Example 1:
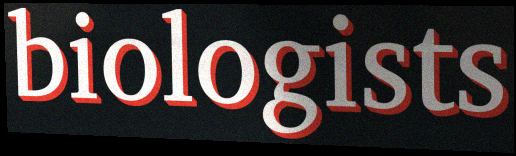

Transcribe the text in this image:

biologists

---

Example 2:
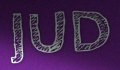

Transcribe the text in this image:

JUD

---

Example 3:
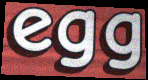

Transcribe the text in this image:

egg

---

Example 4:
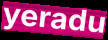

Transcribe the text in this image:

yeradu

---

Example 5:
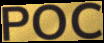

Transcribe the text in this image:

POC